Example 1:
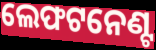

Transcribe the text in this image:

ଲେଫଟନେଣ୍ଟ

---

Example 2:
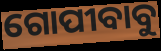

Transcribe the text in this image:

ଗୋପୀବାବୁ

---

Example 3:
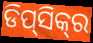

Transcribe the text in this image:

ଡିପ୍‌ସିକ୍‌ର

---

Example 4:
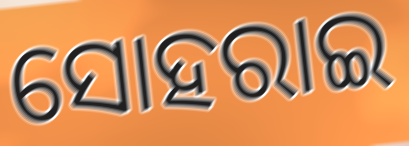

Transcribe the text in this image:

ସୋହରାଇ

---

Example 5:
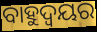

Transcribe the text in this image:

ବାହୁଦ୍ୱୟର